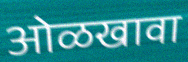
ओळखावा